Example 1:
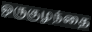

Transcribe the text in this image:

ஒருகுழந்தை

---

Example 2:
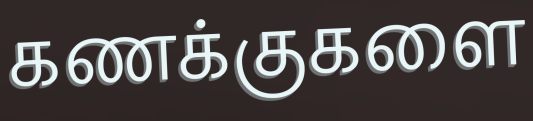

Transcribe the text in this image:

கணக்குகளை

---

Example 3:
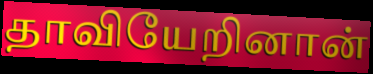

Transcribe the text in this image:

தாவியேறினான்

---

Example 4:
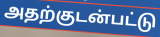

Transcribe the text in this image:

அதற்குடன்பட்டு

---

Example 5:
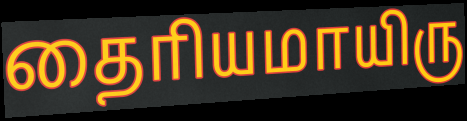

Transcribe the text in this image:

தைரியமாயிரு